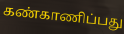
கண்காணிப்பது